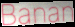
Banan